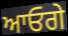
ਆਓਗੇ